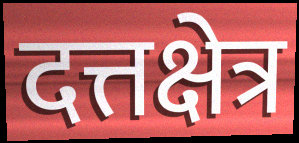
दत्तक्षेत्र